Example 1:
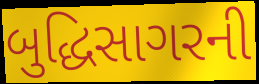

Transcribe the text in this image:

બુદ્ધિસાગરની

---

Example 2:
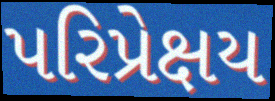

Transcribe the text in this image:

પરિપ્રેક્ષય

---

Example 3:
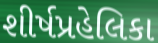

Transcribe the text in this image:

શીર્ષપ્રહેલિકા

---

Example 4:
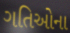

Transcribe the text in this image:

ગતિઓના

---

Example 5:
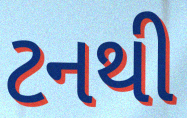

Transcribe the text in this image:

ટનથી